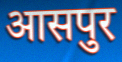
आसपुर